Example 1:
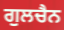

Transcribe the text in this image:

ਗੁਲਚੈਨ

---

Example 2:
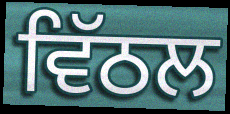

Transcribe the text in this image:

ਵਿੱਠਲ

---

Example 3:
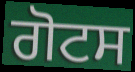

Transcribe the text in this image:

ਗੋਟਸ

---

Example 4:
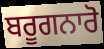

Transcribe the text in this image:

ਬਰੂਗਨਾਰੋ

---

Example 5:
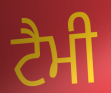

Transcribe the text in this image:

ਟੈਮੀ